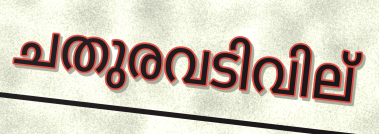
ചതുരവടിവില്